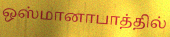
ஒஸ்மானாபாத்தில்